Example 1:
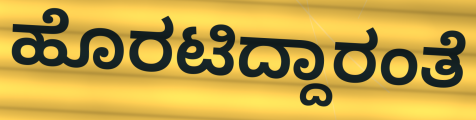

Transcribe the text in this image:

ಹೊರಟಿದ್ದಾರಂತೆ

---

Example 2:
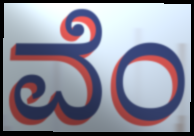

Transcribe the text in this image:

ವೆಂ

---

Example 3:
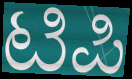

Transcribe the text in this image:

ಟಿಪಿ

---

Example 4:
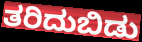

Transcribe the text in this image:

ತರಿದುಬಿಡು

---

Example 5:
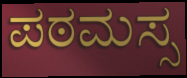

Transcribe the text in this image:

ಪಠಮಸ್ಸ